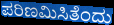
ಪರಿಣಮಿಸಿತೆಂದು